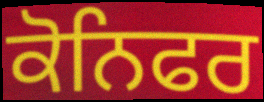
ਕੋਨਿਫਰ